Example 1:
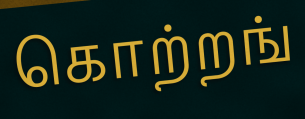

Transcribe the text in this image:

கொற்றங்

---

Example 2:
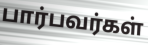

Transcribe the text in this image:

பார்பவர்கள்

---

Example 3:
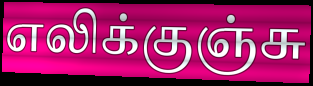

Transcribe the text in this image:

எலிக்குஞ்சு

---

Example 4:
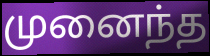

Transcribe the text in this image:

முனைந்த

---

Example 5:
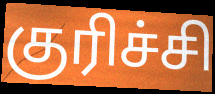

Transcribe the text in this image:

குரிச்சி